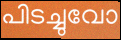
പിടച്ചുവോ